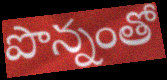
పొన్నంతో